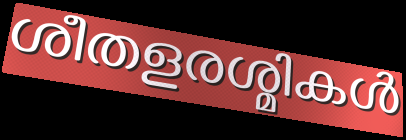
ശീതളരശ്മികൾ